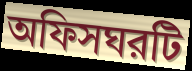
অফিসঘরটি